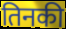
तिनकी